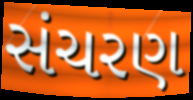
સંચરણ